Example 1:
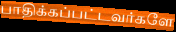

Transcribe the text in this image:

பாதிக்கப்பட்டவர்களே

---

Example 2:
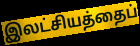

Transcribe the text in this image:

இலட்சியத்தைப்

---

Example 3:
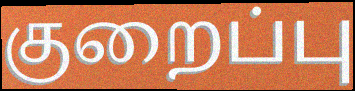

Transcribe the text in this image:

குறைப்பு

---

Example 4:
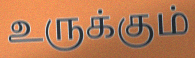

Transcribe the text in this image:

உருக்கும்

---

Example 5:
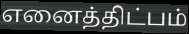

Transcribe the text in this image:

எனைத்திட்பம்